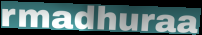
rmadhuraa